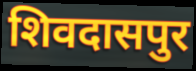
शिवदासपुर